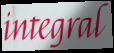
integral